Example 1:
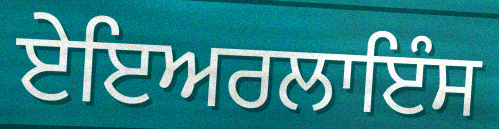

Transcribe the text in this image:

ਏਇਅਰਲਾਇੰਸ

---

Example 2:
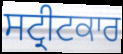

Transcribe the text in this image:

ਸਟ੍ਰੀਟਕਾਰ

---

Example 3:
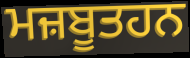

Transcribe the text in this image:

ਮਜ਼ਬੂਤਹਨ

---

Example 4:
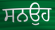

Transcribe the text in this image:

ਸਨਉਹ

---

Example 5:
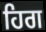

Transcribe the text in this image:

ਹਿਗ